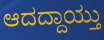
ಆದದ್ದಾಯ್ತು